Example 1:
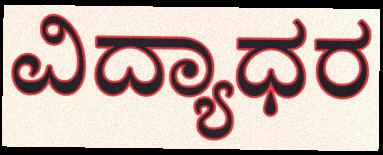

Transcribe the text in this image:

ವಿದ್ಯಾಧರ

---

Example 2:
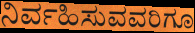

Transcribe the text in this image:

ನಿರ್ವಹಿಸುವವರಿಗೂ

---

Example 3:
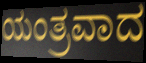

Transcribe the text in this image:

ಯಂತ್ರವಾದ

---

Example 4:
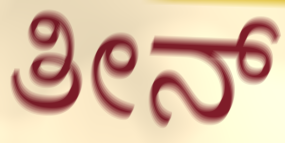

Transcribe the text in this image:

ತೀನ್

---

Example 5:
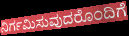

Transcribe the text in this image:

ನಿರ್ಗಮಿಸುವುದರೊಂದಿಗೆ